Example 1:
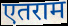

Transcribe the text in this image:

एतराम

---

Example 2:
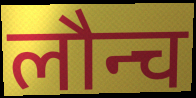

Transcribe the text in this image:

लौन्च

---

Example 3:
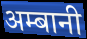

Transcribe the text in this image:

अम्‍बानी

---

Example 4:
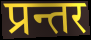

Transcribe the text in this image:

प्रन्तर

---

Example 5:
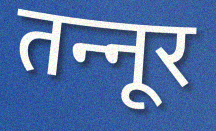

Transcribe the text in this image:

तन्नूर